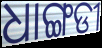
ଧାଙ୍ଗଡୀ